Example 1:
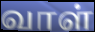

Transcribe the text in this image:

வாள்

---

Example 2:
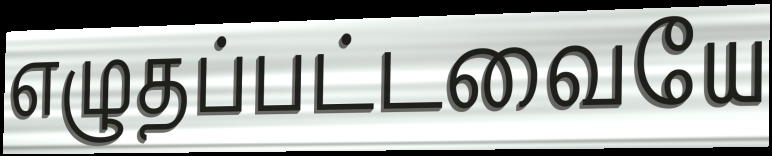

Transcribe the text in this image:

எழுதப்பட்டவையே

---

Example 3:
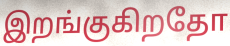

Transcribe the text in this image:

இறங்குகிறதோ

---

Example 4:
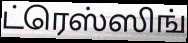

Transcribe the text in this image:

ட்ரெஸ்ஸிங்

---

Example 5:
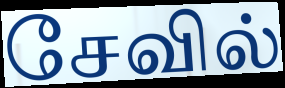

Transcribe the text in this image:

சேவில்